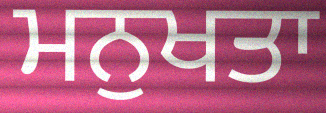
ਮਨੁਖਤਾ